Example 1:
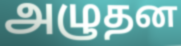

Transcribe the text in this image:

அழுதன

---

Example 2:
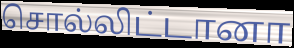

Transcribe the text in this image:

சொல்லிட்டானா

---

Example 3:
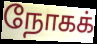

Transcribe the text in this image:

நோகக்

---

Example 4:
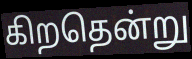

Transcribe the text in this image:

கிறதென்று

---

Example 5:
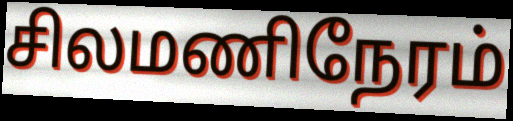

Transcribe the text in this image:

சிலமணிநேரம்